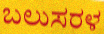
ಬಲುಸರಳ